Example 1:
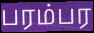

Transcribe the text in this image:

பரம்பர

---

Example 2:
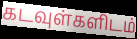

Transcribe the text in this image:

கடவுள்களிடம்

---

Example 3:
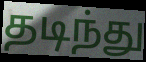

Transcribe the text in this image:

தடிந்து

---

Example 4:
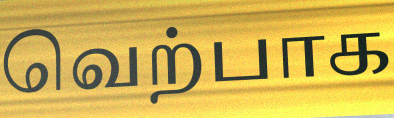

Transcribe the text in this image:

வெற்பாக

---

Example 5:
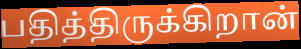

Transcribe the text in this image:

பதித்திருக்கிறான்